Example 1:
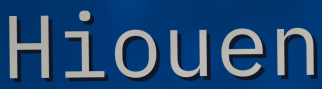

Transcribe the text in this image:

Hiouen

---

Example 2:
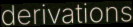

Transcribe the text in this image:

derivations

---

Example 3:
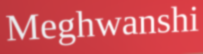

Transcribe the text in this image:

Meghwanshi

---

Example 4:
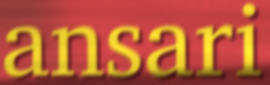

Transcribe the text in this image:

ansari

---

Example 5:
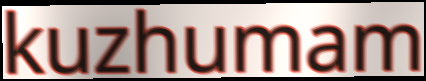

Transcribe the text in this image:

kuzhumam